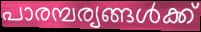
പാരമ്പര്യങ്ങൾക്ക്